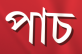
পাচ